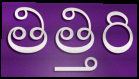
తిత్తిరి